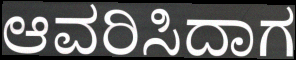
ಆವರಿಸಿದಾಗ